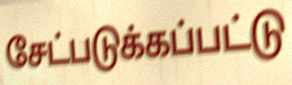
சேட்படுக்கப்பட்டு